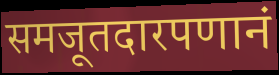
समजूतदारपणानं